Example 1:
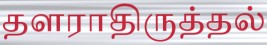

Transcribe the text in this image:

தளராதிருத்தல்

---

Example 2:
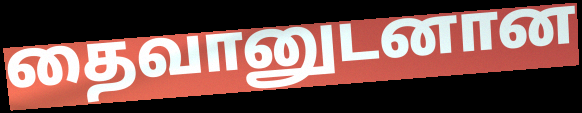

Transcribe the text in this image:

தைவானுடனான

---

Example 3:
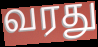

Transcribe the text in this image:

வரது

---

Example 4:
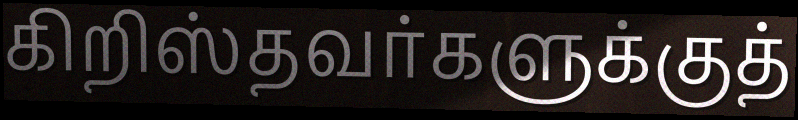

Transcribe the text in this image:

கிறிஸ்தவர்களுக்குத்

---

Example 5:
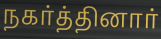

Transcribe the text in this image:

நகர்த்தினார்